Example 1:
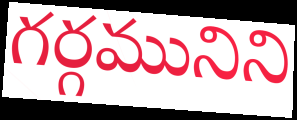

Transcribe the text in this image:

గర్గమునిని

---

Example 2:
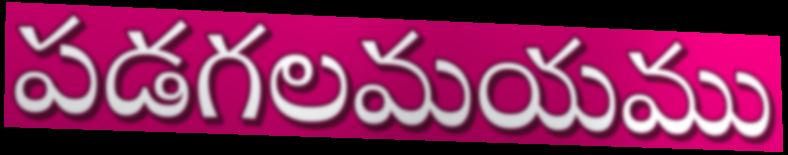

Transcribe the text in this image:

పడగలమయము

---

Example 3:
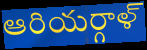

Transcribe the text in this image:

ఆరియర్గాళ్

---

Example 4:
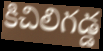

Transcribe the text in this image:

కిచిలిగడ్డ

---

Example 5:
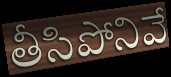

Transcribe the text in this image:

తీసిపోనివే